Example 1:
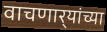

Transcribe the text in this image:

वाचणार्‍यांच्या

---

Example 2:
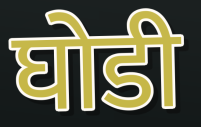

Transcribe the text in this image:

घोडी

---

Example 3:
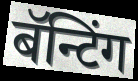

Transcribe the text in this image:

बॅन्टिंग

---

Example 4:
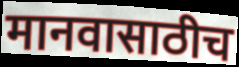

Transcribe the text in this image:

मानवासाठीच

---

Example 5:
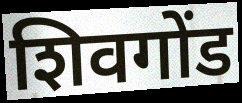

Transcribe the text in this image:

शिवगोंड